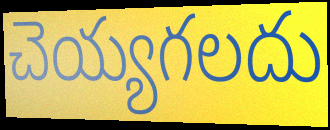
చెయ్యగలదు